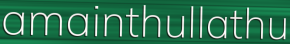
amainthullathu